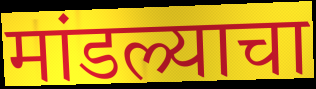
मांडल्याचा